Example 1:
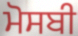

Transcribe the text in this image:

ਮੋਸਬੀ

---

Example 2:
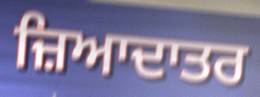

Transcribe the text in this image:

ਜ਼ਿਆਦਾਤਰ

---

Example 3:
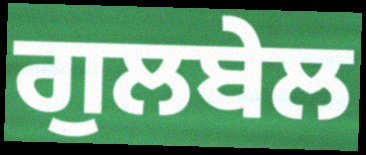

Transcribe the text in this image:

ਗੁਲਬੇਲ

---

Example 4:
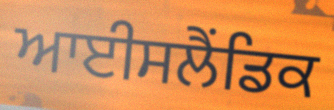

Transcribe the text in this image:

ਆਈਸਲੈਂਡਿਕ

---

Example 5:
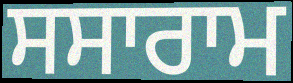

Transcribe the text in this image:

ਸਸਾਰਾਮ